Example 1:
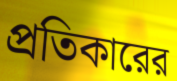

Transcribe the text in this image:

প্রতিকারের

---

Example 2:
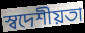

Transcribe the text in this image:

স্বদেশীয়তা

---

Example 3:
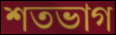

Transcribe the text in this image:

শতভাগ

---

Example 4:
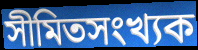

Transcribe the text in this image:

সীমিতসংখ্যক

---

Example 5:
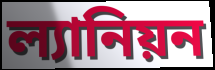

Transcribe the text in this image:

ল্যানিয়ন